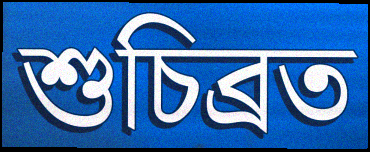
শুচিব্রত